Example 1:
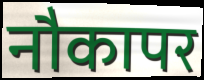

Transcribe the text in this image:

नौकापर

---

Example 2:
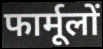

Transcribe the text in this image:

फार्मूलों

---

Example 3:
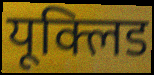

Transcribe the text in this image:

यूक्लिड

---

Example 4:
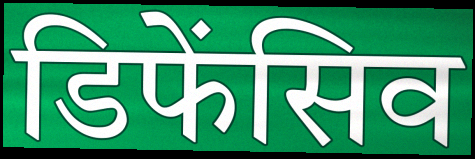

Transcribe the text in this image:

डिफेंसिव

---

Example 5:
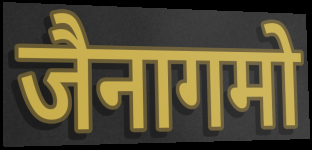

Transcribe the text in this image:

जैनागमो